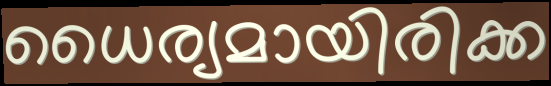
ധൈര്യമായിരിക്ക